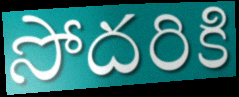
సోదరికి